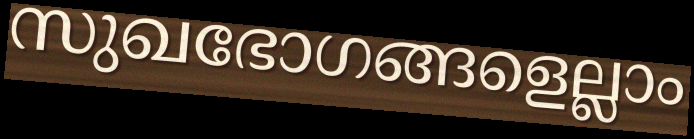
സുഖഭോഗങ്ങളെല്ലാം